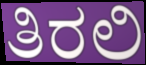
ತಿರಲಿ